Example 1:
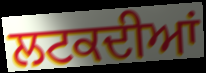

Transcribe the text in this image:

ਲਟਕਦੀਆਂ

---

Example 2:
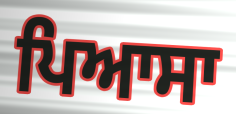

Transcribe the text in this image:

ਪਿਆਸਾ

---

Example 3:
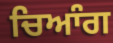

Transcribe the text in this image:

ਚਿਆੰਗ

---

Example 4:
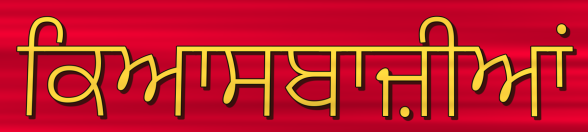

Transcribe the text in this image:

ਕਿਆਸਬਾਜ਼ੀਆਂ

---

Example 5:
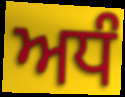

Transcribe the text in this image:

ਅਧੰ